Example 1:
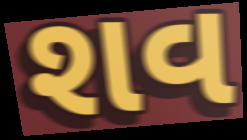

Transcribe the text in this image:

શવ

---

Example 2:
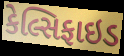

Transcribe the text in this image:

કેલ્સિફાઇડ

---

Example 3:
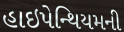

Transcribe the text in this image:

હાઇપેન્થિયમની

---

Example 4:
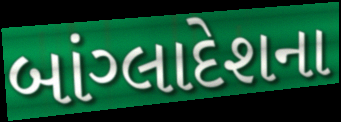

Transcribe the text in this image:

બાંગ્લાદેશના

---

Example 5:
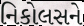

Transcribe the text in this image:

નિકોલસને